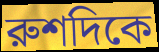
রুশদিকে